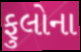
ફુલોના